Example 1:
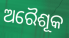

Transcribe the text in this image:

ଅରୈଶୂକ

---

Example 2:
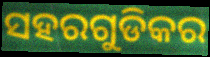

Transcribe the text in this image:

ସହରଗୁଡିକର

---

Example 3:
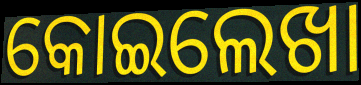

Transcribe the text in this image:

କୋଇଲେଖା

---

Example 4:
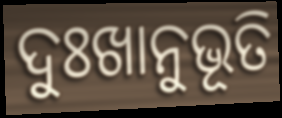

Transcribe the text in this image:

ଦୁଃଖାନୁଭୂତି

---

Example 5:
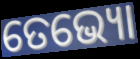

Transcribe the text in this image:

ତେଭ୍ୟୋ